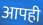
आपही